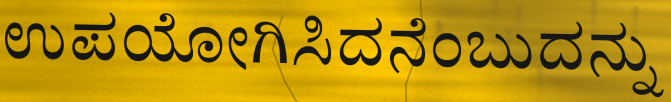
ಉಪಯೋಗಿಸಿದನೆಂಬುದನ್ನು